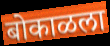
बोकाळला